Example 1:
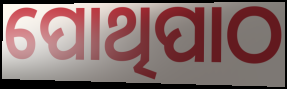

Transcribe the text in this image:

ପୋଥିପାଠ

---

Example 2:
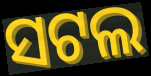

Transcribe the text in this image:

ସଟଲ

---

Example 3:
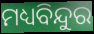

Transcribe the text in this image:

ମଧ୍ୟବିନ୍ଦୁର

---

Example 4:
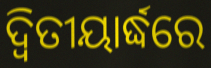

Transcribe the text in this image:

ଦ୍ୱିତୀୟାର୍ଦ୍ଧରେ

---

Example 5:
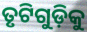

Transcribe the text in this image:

ତୃଟିଗୁଡ଼ିକୁ